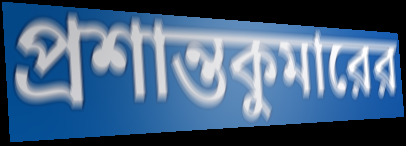
প্রশান্তকুমারের